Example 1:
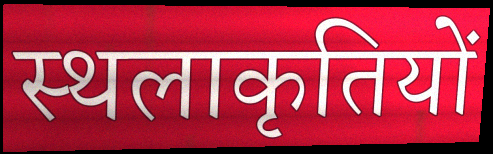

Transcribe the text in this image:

स्थलाकृतियों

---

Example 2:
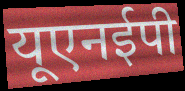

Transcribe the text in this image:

यूएनईपी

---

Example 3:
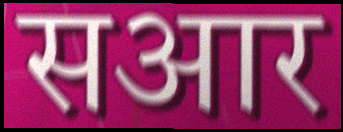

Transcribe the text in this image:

सआर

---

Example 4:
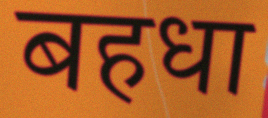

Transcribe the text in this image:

बहधा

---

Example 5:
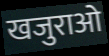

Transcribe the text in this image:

खजुराओ